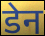
डेन